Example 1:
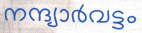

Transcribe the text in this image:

നന്ദ്യാർവട്ടം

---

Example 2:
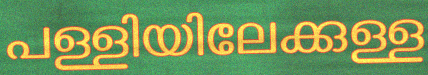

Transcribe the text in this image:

പള്ളിയിലേക്കുള്ള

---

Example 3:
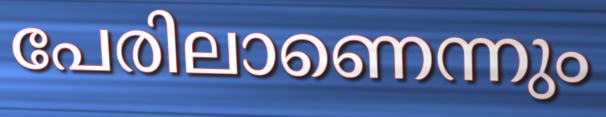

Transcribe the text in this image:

പേരിലാണെന്നും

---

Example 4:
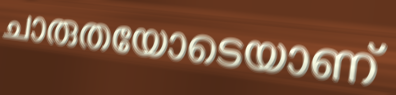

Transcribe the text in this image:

ചാരുതയോടെയാണ്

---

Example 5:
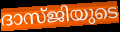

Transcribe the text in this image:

ദാസ്ജിയുടെ